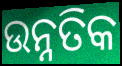
ଉନ୍ନତିକ